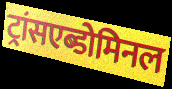
ट्रांसएब्डोमिनल